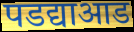
पडद्याआड